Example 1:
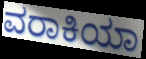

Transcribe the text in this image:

ವರಾಕಿಯಾ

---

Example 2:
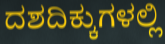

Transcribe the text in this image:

ದಶದಿಕ್ಕುಗಳಲ್ಲಿ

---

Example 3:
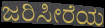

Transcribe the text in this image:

ಜರಿಸೀರೆಯ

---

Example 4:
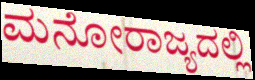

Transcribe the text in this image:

ಮನೋರಾಜ್ಯದಲ್ಲಿ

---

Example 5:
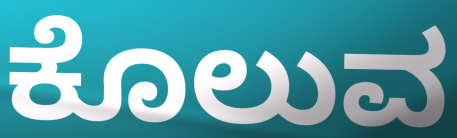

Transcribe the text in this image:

ಕೊಲುವ